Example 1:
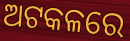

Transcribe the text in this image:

ଅଟକଳରେ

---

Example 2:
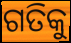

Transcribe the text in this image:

ଗତିକୁ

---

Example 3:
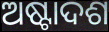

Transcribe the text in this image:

ଅଷ୍ଟାଦଶ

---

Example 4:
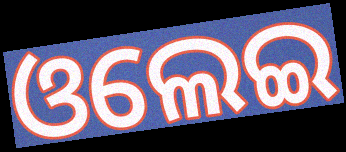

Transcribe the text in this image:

ଓଲେଇ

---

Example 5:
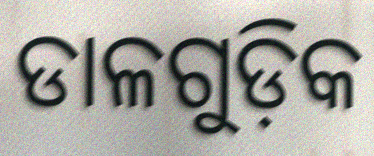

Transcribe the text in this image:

ଡାଳଗୁଡ଼ିକ